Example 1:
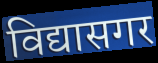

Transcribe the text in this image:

विद्यासगर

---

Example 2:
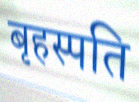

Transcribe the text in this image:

बृहस्पति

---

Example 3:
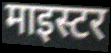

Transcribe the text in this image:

माइस्टर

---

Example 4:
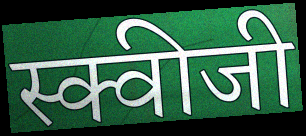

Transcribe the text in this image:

स्क्वीजी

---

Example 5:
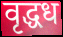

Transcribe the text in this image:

वृद्धध